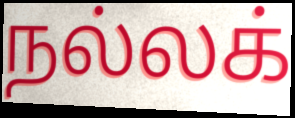
நல்லக்